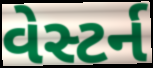
વેસ્ટર્ન